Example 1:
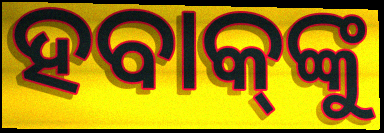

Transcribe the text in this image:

ହବାକ୍‌ଙ୍କୁ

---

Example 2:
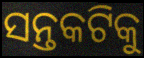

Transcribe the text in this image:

ସନ୍ତକଟିକୁ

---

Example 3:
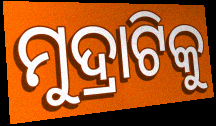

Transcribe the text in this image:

ମୁଦ୍ରାଟିକୁ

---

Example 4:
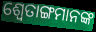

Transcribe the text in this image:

ଶ୍ଵେତାଙ୍ଗମାନଙ୍କ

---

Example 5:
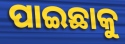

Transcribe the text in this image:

ପାଇଛାକୁ